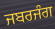
ਜਬਰਜੰਗ